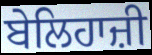
ਬੇਲਿਹਾਜ਼ੀ